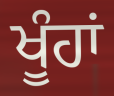
ਖੂੰਹਾਂ